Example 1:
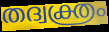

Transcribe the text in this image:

തദ്വക്ത്രം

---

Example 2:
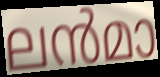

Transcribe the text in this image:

ലൻമാ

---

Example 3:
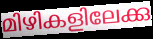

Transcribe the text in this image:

മിഴികളിലേക്കു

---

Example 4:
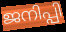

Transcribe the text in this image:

ജനിപ്പി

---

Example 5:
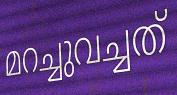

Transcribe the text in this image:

മറച്ചുവച്ചത്